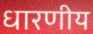
धारणीय